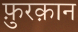
फ़ुरक़ान